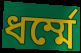
ধর্ম্মে